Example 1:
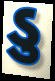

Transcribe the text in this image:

ડુ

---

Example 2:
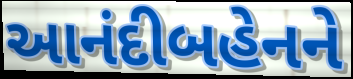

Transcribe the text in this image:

આનંદીબહેનને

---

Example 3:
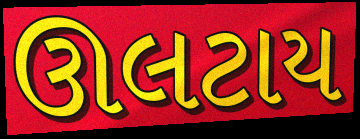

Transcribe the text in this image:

ઊલટાય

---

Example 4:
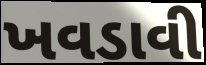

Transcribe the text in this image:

ખવડાવી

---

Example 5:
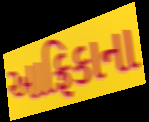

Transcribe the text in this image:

આફ્રિકાના